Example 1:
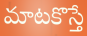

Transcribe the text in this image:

మాటకొస్తే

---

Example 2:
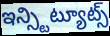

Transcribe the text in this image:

ఇన్స్టిట్యూట్స్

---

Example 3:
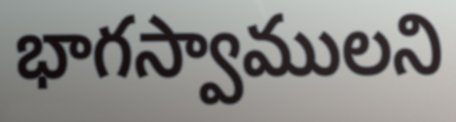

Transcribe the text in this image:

భాగస్వాములని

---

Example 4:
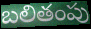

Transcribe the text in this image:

బలితంపు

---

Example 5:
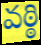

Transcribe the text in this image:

వఠ్ఠి